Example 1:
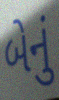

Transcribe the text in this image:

બેનું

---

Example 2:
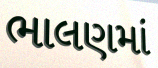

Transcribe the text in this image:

ભાલણમાં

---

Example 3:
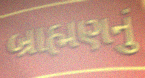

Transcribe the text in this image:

બ્રાહ્મણનું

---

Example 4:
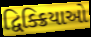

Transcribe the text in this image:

દ્વિક્ક્રિયાઓ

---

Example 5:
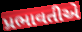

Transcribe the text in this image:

પ્રભાવતીએ